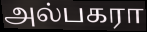
அல்பகரா